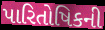
પારિતોષિકની